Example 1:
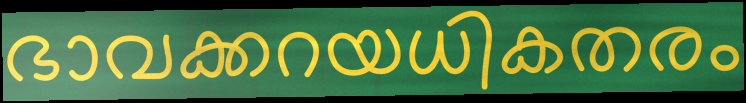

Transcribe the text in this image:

ഭാവക്കറയധികതരം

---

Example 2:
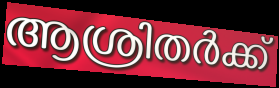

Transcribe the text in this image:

ആശ്രിതർക്ക്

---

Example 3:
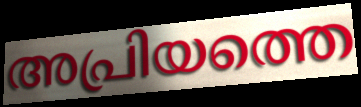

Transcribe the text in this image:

അപ്രിയത്തെ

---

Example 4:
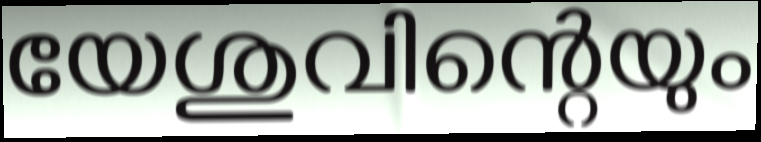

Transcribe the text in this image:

യേശുവിന്റെയും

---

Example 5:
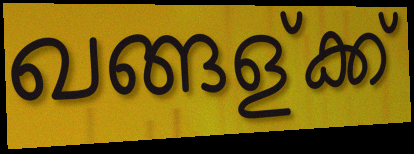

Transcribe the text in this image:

ഖങ്ങള്ക്ക്